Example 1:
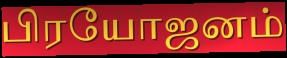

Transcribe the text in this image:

பிரயோஜனம்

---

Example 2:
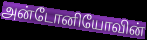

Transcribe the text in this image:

அன்டோனியோவின்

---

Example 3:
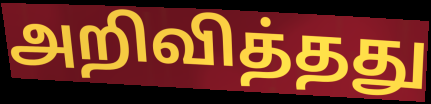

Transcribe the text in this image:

அறிவித்தது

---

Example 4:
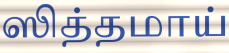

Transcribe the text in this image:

ஸித்தமாய்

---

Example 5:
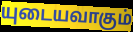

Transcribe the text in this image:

யுடையவாகும்